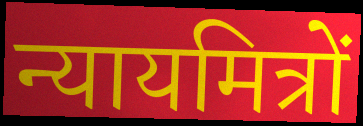
न्यायमित्रों